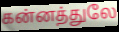
கன்னத்துலே